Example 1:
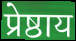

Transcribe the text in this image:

प्रेष्ठाय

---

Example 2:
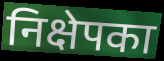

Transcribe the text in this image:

निक्षेपका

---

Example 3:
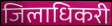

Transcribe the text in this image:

जिलाधिकरी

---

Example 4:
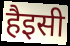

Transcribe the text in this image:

हैइसी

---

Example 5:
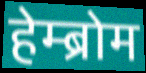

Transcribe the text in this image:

हेम्ब्रोम